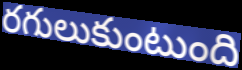
రగులుకుంటుంది